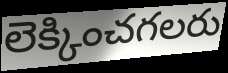
లెక్కించగలరు